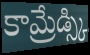
కామ్రేడ్స్కి